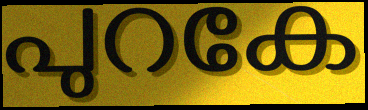
പുറകേ